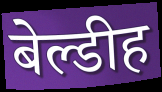
बेल्डीह